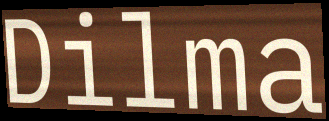
Dilma